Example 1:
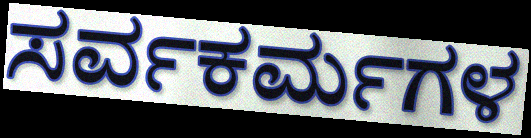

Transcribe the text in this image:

ಸರ್ವಕರ್ಮಗಳ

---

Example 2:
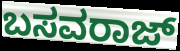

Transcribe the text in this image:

ಬಸವರಾಜ್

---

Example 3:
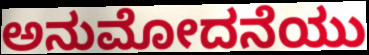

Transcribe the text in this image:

ಅನುಮೋದನೆಯು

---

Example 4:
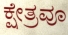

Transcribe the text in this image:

ಕ್ಷೇತ್ರವೂ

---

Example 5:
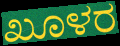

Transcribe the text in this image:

ಖೂಳರ